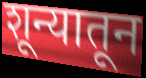
शून्यातून